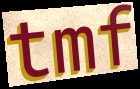
tmf